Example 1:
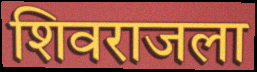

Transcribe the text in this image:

शिवराजला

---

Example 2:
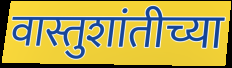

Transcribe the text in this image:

वास्तुशांतीच्या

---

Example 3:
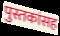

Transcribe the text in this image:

पुस्तकांसह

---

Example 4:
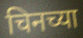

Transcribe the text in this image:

चिनच्या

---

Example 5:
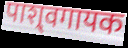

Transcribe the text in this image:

पाश्र्वगायक